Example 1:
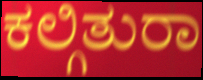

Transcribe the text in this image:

ಕಲ್ಗಿತುರಾ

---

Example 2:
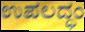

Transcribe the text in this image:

ಉಪಲದ್ಧಂ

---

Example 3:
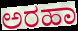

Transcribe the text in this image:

ಅರಹಾ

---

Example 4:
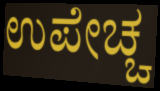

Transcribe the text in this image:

ಉಪೇಚ್ಚ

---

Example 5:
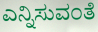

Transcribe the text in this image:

ಎನ್ನಿಸುವಂತೆ